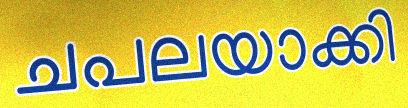
ചപലയാക്കി